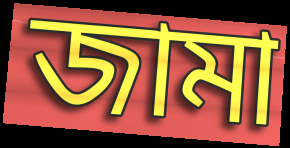
জামা